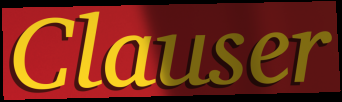
Clauser